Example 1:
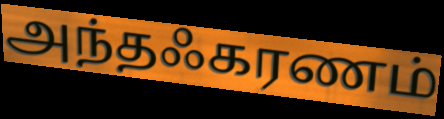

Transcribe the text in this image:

அந்தஃகரணம்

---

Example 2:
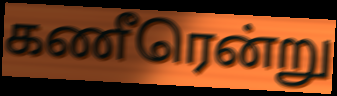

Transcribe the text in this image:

கணீரென்று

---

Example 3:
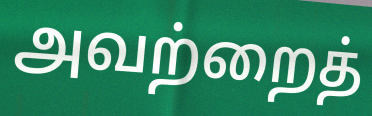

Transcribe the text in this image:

அவற்றைத்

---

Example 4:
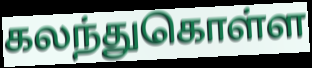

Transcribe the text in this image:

கலந்துகொள்ள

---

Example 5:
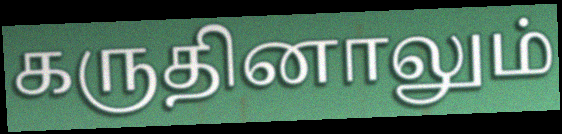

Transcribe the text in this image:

கருதினாலும்